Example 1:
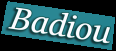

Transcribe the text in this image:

Badiou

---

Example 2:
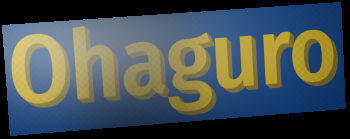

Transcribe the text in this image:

Ohaguro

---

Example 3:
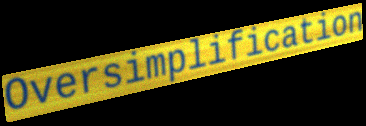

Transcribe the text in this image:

Oversimplification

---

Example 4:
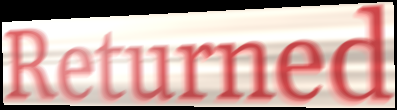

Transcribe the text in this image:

Returned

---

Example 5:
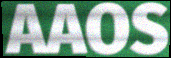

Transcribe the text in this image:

AAOS